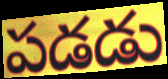
పడడు